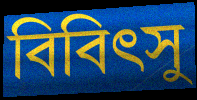
বিবিৎসু